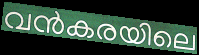
വൻകരയിലെ